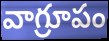
వాగ్రూపం